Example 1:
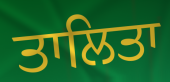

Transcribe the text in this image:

ਤਾਲਿਤਾ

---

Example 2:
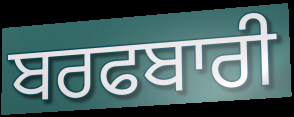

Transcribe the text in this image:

ਬਰਫਬਾਰੀ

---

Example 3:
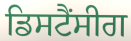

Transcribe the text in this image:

ਡਿਸਟੈਂਸੀਗ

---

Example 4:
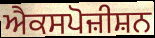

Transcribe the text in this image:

ਐਕਸਪੋਜ਼ੀਸ਼ਨ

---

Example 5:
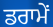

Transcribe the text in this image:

ਡਰਾਮੇਂ